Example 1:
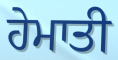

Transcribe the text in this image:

ਹੇਮਾਤੀ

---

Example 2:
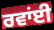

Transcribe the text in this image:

ਰਵਾਂਈ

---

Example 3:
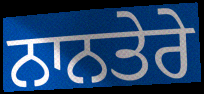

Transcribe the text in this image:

ਨਾਨਤੇਰੇ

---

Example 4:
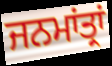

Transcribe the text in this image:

ਜਨਮਾਂਤ੍ਰਾਂ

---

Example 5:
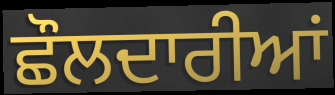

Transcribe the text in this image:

ਛੌਲਦਾਰੀਆਂ